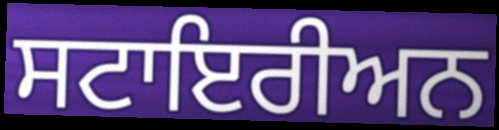
ਸਟਾਇਰੀਅਨ